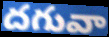
దగువా